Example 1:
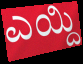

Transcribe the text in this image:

ಎಯ್ದಿ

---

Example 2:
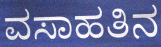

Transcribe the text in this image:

ವಸಾಹತಿನ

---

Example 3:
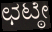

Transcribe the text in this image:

ಛಟ್ಠೇ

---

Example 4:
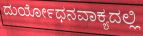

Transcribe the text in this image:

ದುರ್ಯೋಧನವಾಕ್ಯದಲ್ಲಿ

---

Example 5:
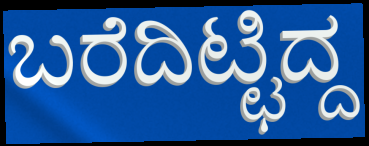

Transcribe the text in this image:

ಬರೆದಿಟ್ಟಿದ್ದ